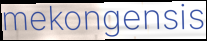
mekongensis